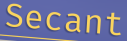
Secant